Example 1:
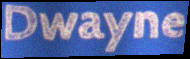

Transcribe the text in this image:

Dwayne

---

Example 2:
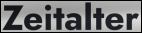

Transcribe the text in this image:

Zeitalter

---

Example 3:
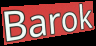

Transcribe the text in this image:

Barok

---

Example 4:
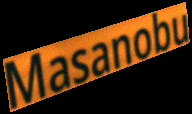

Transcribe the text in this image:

Masanobu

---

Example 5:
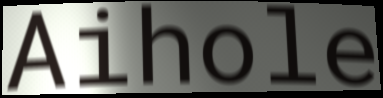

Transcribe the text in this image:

Aihole